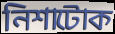
নিশাটোক